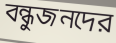
বন্ধুজনদের